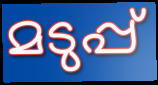
മടുപ്പ്